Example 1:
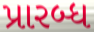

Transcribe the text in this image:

પ્રારબ્ધ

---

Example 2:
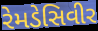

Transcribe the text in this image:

રેમડેસિવીર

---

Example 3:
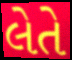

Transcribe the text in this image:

લેતે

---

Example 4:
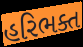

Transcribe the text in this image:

હરિભક્ત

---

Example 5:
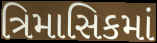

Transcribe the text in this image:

ત્રિમાસિકમાં